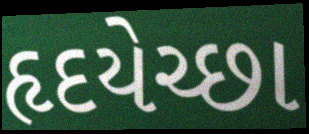
હૃદયેચ્છા